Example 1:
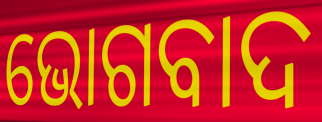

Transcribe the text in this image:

ଭୋଗବାଦ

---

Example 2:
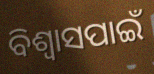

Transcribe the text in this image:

ବିଶ୍ୱାସପାଇଁ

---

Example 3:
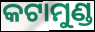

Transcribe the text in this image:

କଟାମୁଣ୍ଡ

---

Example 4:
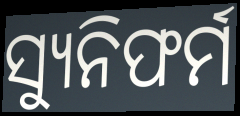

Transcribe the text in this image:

ସ୍ୟୁନିଫର୍ମ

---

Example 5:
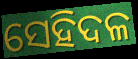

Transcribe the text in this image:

ସେହିଦଳ